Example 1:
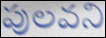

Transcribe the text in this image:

పులవని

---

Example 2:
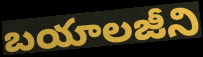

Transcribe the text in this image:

బయాలజీని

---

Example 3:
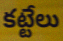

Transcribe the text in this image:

కట్టేలు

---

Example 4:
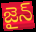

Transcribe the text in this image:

జైన్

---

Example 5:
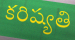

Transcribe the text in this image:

కరిష్యతి